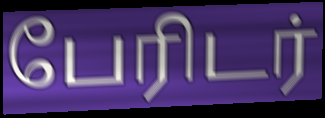
பேரிடர்